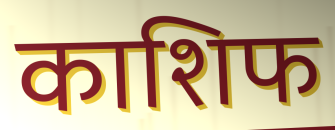
काशिफ